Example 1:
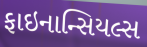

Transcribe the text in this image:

ફાઇનાન્સિયલ્સ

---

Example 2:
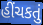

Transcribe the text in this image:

હીંચકતું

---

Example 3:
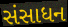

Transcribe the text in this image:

સંસાધન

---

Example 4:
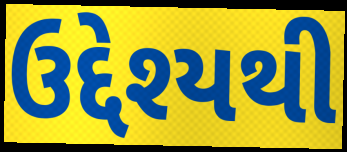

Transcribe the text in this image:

ઉદ્દેશ્યથી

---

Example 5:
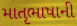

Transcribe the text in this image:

માતૃભાષાની